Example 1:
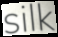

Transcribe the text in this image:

silk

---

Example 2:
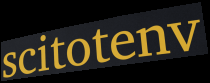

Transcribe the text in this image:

scitotenv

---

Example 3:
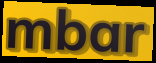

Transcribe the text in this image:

mbar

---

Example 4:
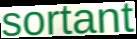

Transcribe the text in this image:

sortant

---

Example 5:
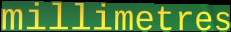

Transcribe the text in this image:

millimetres